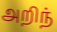
அறிந்